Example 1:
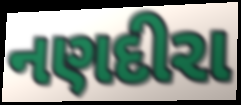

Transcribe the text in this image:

નણદીરા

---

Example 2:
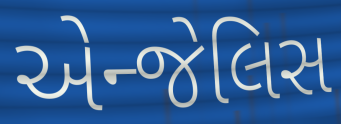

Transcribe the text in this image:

એન્જેલિસ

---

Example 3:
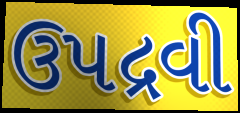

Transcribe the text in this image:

ઉપદ્રવી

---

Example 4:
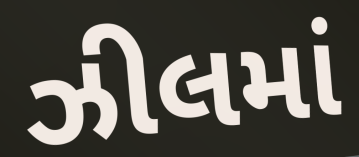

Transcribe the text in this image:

ઝીલમાં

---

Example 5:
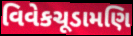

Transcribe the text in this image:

વિવેકચૂડામણિ